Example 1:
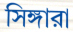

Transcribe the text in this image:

সিঙ্গারা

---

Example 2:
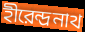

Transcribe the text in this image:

হীরেন্দ্রনাথ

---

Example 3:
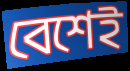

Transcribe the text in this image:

বেশেই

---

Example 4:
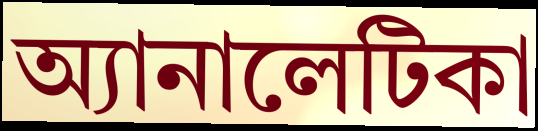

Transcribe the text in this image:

অ্যানালেটিকা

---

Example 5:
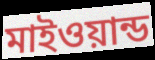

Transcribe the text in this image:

মাইওয়ান্ড